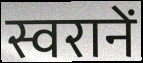
स्वरानें